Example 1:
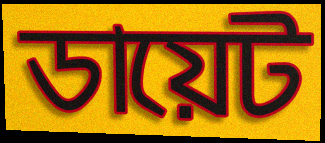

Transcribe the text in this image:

ডায়েট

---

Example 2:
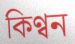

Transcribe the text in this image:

কিণ্বন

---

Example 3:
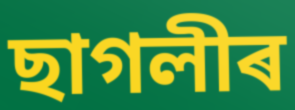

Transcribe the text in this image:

ছাগলীৰ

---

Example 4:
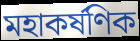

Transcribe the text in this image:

মহাকৰ্ষণিক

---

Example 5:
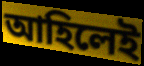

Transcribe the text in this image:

আহিলেই